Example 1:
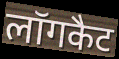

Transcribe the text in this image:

लॉगकैट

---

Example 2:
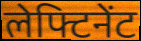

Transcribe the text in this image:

लेफ्टिनेंट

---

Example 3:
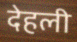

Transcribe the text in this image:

देहली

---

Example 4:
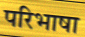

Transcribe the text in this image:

परिभाषा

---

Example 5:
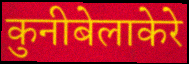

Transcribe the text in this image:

कुनीबेलाकेरे